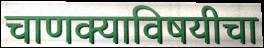
चाणक्याविषयीचा